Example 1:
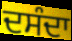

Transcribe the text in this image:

ਦਸੰਦਾ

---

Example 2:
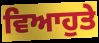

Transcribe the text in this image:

ਵਿਆਹੁਤੇ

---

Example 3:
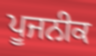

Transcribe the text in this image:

ਪੂਜਨੀਕ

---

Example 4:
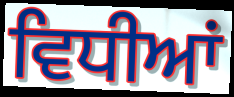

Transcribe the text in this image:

ਵਿਧੀਆਂ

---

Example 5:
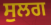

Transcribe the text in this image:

ਸੁਲਗ